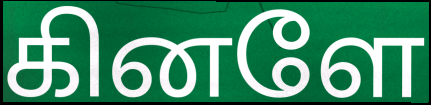
கினளே